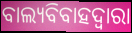
ବାଲ୍ୟବିବାହଦ୍ୱାରା